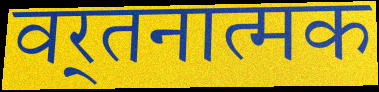
वर्तनात्मक